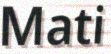
Mati